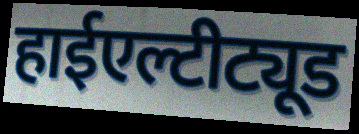
हाईएल्टीट्यूड